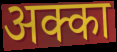
अक्का